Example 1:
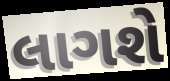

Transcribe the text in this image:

લાગશે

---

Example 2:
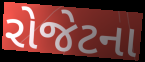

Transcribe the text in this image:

રોજેટના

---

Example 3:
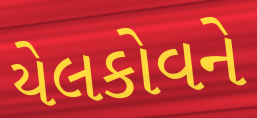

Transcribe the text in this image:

યેલકોવને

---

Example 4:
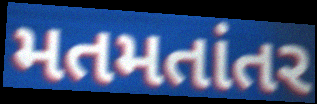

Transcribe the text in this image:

મતમતાંતર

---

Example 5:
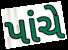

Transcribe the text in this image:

પાંચે